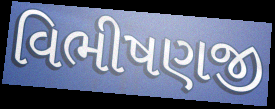
વિભીષણજી